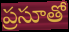
ప్రసూతో